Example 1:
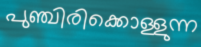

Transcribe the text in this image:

പുഞ്ചിരിക്കൊള്ളുന്ന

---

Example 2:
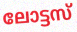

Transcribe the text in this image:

ലോട്ടസ്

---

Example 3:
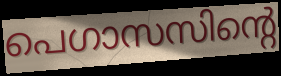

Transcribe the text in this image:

പെഗാസസിന്റെ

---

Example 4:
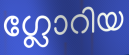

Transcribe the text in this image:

ഗ്ലോറിയ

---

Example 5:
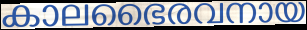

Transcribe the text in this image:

കാലഭൈരവനായ